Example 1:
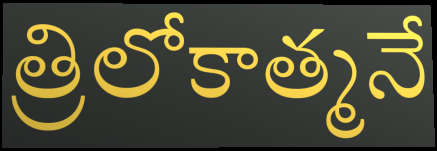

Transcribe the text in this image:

త్రిలోకాత్మనే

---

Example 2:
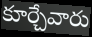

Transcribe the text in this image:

కూర్చేవారు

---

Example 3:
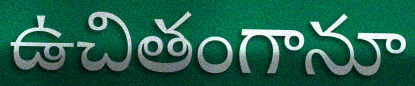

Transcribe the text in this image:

ఉచితంగానూ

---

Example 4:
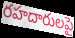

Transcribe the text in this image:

రహదారులపై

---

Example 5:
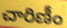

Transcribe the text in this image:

చారిణీం